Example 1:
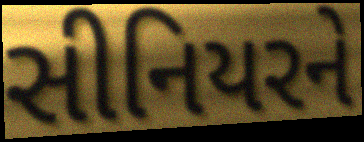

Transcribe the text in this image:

સીનિયરને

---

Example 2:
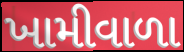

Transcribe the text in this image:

ખામીવાળા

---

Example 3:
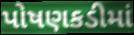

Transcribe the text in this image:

પોષણકડીમાં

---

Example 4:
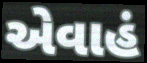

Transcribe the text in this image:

એવાહં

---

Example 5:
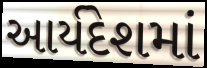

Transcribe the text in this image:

આર્યદેશમાં